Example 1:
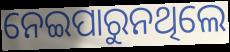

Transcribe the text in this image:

ନେଇପାରୁନଥିଲେ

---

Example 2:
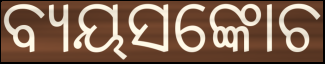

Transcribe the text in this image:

ବ୍ୟୟସଙ୍କୋଚ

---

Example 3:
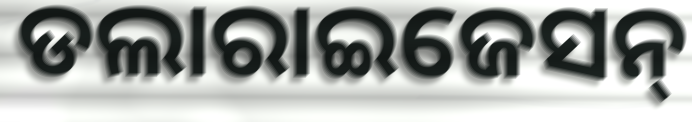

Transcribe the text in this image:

ଡଲାରାଇଜେସନ୍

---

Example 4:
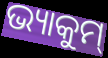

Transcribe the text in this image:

ଭ୍ୟାକୁମ୍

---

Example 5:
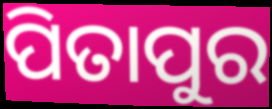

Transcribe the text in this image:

ପିତାପୁର